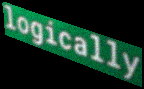
logically